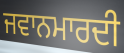
ਜਵਾਨਮਾਰਦੀ